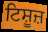
ਟਿਸ਼ੂਜ਼